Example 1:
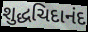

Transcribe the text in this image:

શુદ્ધચિદાનંદ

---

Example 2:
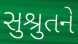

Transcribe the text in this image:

સુશ્રુતને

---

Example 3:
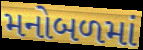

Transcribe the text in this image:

મનોબળમાં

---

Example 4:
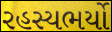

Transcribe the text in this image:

રહસ્યભર્યો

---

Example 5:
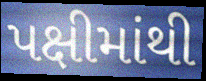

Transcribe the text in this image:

પક્ષીમાંથી